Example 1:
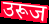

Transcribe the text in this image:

उरूज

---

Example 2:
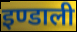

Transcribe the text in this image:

इण्डाली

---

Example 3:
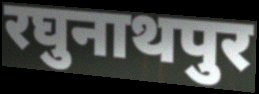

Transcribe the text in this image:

रघुनाथपुर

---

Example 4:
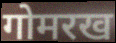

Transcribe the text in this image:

गोमरख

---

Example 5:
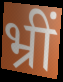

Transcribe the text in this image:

भ्रीं